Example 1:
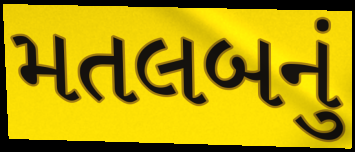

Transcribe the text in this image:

મતલબનું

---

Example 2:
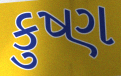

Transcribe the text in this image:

કુષ્ણ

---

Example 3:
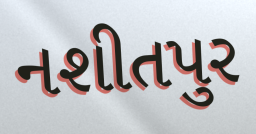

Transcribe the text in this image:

નશીતપુર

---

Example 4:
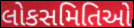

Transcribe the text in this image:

લોકસમિતિઓ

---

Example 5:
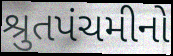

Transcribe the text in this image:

શ્રુતપંચમીનો